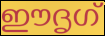
ഈദൃഗ്